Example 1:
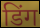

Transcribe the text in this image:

डिंग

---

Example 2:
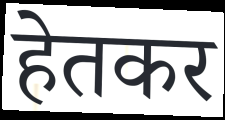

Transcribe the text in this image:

हेतकर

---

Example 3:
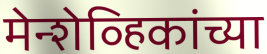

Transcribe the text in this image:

मेन्शेव्हिकांच्या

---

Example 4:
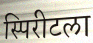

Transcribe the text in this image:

स्पिरीटला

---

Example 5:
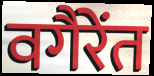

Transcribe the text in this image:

वगैरेंत